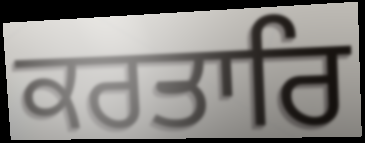
ਕਰਤਾਰਿ